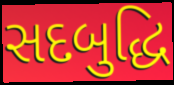
સદબુદ્ધિ